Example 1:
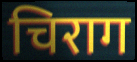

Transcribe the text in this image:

चिराग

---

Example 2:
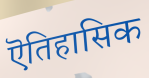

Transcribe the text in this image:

ऎतिहासिक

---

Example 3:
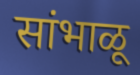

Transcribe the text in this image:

सांभाळू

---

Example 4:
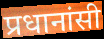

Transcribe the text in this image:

प्रधानांसी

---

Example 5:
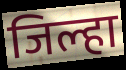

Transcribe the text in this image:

जिल्हा